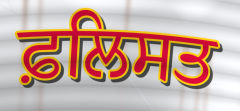
ਫ਼ਲਿਸਤ